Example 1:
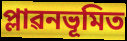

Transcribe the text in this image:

প্লাৱনভূমিত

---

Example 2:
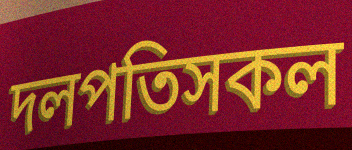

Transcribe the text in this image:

দলপতিসকল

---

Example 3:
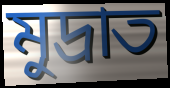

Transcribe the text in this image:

মুদ্ৰাত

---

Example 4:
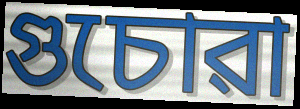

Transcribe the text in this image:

গুচোৱা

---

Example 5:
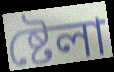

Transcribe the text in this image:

ষ্টেলা